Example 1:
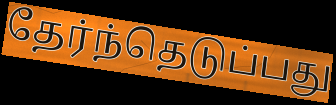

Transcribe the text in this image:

தேர்ந்தெடுப்பது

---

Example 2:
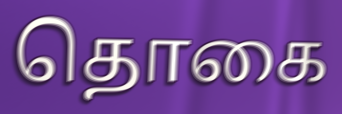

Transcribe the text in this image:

தொகை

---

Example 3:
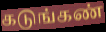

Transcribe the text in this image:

கடுங்கண்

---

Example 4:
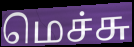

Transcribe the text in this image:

மெச்சு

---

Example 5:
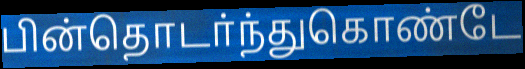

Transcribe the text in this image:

பின்தொடர்ந்துகொண்டே